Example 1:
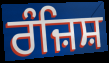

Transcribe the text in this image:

ਰੰਜ਼ਿਸ਼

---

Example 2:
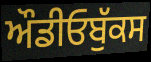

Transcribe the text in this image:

ਔਡੀਓਬੁੱਕਸ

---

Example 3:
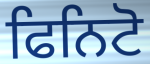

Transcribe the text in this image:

ਫਿਨਿਟੋ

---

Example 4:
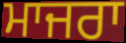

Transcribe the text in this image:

ਮਾਜਰਾ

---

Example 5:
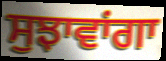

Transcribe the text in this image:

ਸੁਝਾਵਾਂਗਾ